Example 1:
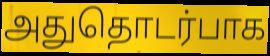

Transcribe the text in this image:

அதுதொடர்பாக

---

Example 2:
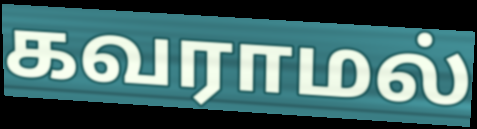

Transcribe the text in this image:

கவராமல்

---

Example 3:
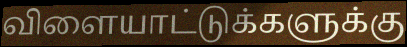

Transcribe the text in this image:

விளையாட்டுக்களுக்கு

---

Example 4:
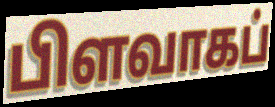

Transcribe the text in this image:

பிளவாகப்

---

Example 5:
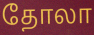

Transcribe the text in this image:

தோலா